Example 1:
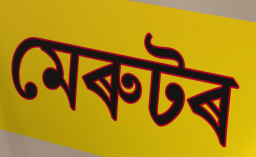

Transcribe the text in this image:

মেৰুটৰ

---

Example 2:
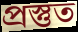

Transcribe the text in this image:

প্ৰস্তুত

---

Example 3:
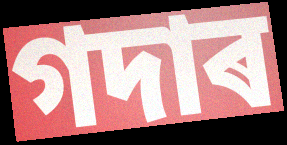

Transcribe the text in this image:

গদাৰ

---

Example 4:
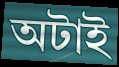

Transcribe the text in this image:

অটাই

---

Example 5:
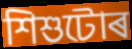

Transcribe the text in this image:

শিশুটোৰ